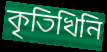
কৃতিখিনি